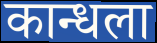
कान्धला